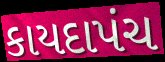
કાયદાપંચ